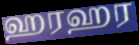
ஹரஹர